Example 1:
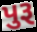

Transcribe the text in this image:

પુરૂ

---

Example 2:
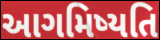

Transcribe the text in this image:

આગમિષ્યતિ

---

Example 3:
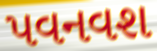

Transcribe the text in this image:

પવનવશ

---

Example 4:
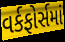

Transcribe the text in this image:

વર્કફોર્સમાં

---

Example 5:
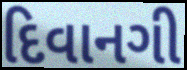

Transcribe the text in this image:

દિવાનગી